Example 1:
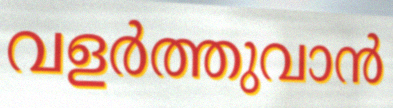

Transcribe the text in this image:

വളർത്തുവാൻ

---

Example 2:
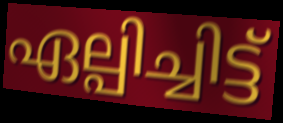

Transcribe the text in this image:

ഏല്പിച്ചിട്ട്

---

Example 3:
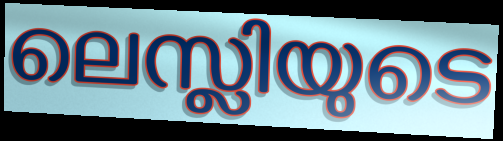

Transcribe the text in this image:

ലെസ്ലിയുടെ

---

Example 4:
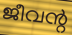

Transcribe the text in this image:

ജീവന്റ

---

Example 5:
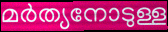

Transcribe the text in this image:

മർത്യനോടുള്ള